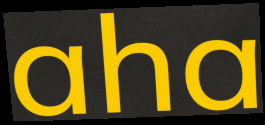
aha